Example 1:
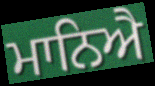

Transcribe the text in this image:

ਮਾਨਿਐ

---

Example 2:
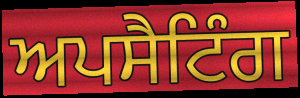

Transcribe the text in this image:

ਅਪਸੈਟਿੰਗ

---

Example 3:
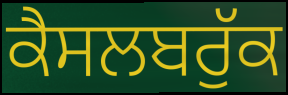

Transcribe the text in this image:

ਕੈਸਲਬਰੁੱਕ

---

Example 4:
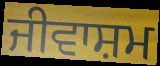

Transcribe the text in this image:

ਜੀਵਾਸ਼ਮ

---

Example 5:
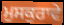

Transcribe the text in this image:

ਮੁਸਕੁਰਾਵੇ